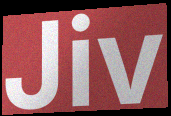
Jiv